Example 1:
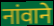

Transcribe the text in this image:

नांवाने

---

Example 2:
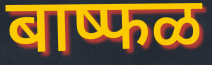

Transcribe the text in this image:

बाष्फळ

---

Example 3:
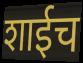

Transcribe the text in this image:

शाईच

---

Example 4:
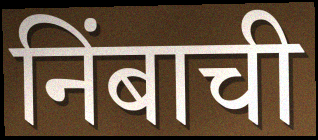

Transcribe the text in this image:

निंबाची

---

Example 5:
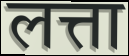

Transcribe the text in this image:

लत्ता